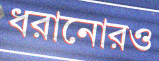
ধরানোরও